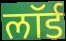
लॉर्ड